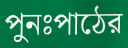
পুনঃপাঠের